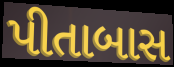
પીતાબાસ